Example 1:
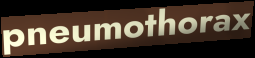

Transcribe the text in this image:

pneumothorax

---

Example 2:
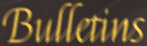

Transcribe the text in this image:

Bulletins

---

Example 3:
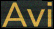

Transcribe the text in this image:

Avi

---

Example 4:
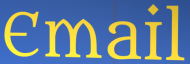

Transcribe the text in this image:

Email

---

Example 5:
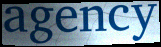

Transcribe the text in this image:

agency